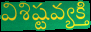
విశిష్టవ్యక్తి